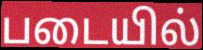
படையில்